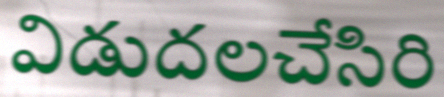
విడుదలచేసిరి